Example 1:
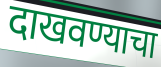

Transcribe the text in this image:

दाखवण्याचा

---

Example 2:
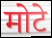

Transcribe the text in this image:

मोटे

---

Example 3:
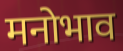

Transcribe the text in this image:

मनोभाव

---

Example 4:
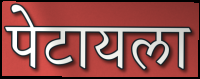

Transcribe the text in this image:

पेटायला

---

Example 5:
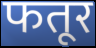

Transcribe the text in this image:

फतूर